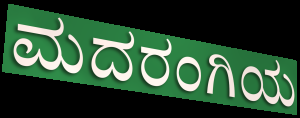
ಮದರಂಗಿಯ